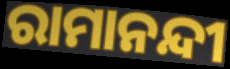
ରାମାନନ୍ଦୀ